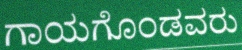
ಗಾಯಗೊಂಡವರು